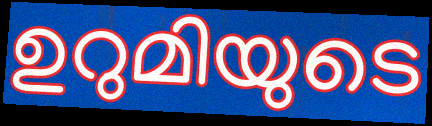
ഉറുമിയുടെ